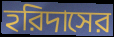
হরিদাসের